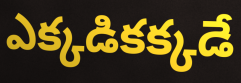
ఎక్కడికక్కడే